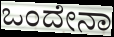
ಒಂದೇನಾ